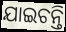
ଯାଇଚନ୍ତି